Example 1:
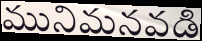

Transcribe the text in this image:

మునిమనవడి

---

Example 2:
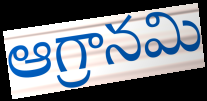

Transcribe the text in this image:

ఆగ్రానమి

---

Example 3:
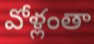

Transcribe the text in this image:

వోళ్లంతా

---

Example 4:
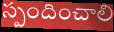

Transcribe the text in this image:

స్పందించాలి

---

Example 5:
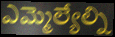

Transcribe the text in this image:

ఎమ్మెల్యేల్ని